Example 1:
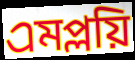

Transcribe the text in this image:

এমপ্লয়ি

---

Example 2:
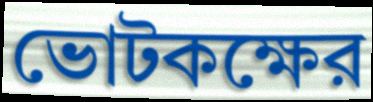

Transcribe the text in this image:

ভোটকক্ষের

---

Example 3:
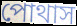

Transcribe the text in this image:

পোথাস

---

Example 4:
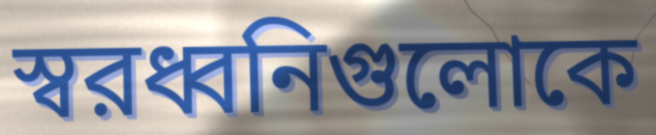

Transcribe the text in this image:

স্বরধ্বনিগুলোকে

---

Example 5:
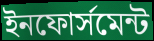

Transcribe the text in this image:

ইনফোর্সমেন্ট